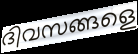
ദിവസങ്ങളെ